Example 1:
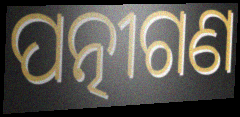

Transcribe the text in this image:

ପତ୍ନୀଗଣ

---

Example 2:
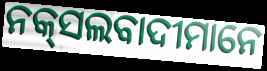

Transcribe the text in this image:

ନକ୍‌ସଲବାଦୀମାନେ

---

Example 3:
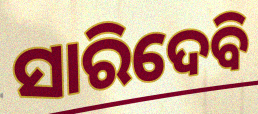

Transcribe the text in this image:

ସାରିଦେବି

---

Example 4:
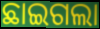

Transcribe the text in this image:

ଛାଇଗଲା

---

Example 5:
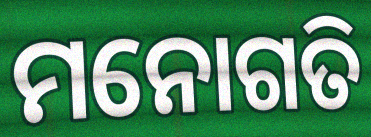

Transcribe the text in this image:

ମନୋଗତି